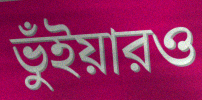
ভুঁইয়ারও